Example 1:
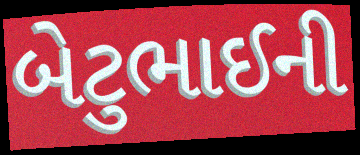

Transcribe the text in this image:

બેટુભાઈની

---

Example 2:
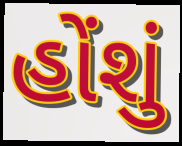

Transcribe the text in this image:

હોંશું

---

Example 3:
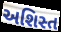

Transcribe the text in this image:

અશિસ્ત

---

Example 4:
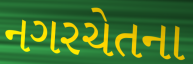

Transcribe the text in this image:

નગરચેતના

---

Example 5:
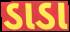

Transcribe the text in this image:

ડાડા